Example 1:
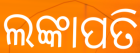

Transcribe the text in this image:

ଲଙ୍କାପତି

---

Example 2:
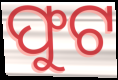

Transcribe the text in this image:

ଫୁଟ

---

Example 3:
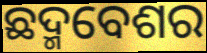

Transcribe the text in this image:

ଛଦ୍ମବେଶର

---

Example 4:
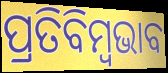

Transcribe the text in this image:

ପ୍ରତିବିମ୍ବଭାବ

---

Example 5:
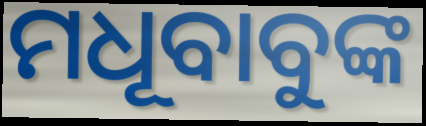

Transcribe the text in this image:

ମଧୂବାବୁଙ୍କ